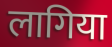
लागिया